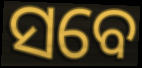
ସବେ